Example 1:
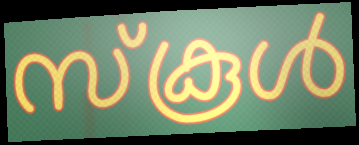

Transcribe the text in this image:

സ്കൂൾ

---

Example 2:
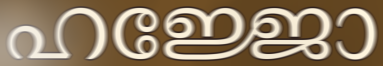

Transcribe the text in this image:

ഹജ്ജോ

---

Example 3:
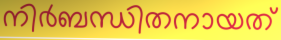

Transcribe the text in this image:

നിർബന്ധിതനായത്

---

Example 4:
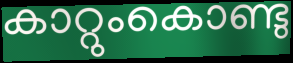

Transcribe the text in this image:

കാറ്റുംകൊണ്ടു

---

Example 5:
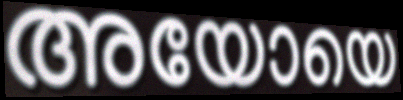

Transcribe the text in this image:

അയോയെ